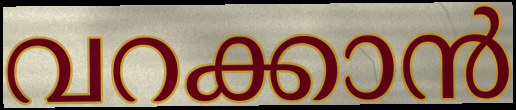
വറക്കാൻ